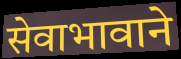
सेवाभावाने